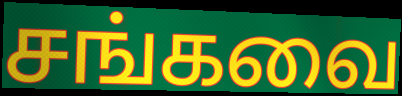
சங்கவை